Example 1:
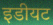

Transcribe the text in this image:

इडीयट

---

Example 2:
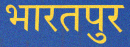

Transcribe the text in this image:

भारतपुर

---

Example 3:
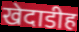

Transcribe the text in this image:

खेदाडीह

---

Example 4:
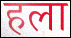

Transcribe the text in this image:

हला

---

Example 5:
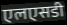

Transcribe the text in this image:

एलएसडी